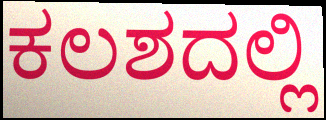
ಕಲಶದಲ್ಲಿ